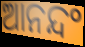
ଆନନ୍ଦଂ